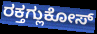
ರಕ್ತಗ್ಲುಕೋಸ್